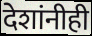
देशांनीही